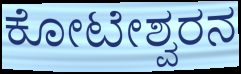
ಕೋಟೇಶ್ವರನ